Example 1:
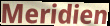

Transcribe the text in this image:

Meridien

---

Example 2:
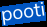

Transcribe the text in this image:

pooti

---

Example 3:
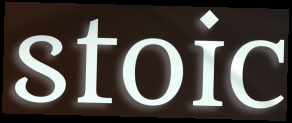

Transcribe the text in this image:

stoic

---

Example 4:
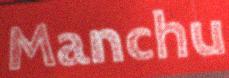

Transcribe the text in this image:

Manchu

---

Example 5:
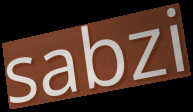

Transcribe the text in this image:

sabzi